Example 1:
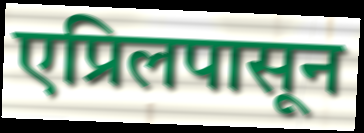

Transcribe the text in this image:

एप्रिलपासून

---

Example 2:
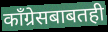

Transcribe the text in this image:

काँग्रेसबाबतही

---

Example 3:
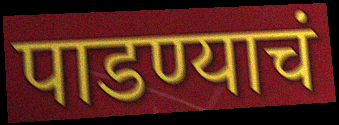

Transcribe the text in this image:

पाडण्याचं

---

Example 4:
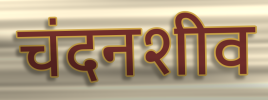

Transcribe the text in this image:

चंदनशीव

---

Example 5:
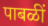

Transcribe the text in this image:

पाबळीं